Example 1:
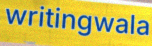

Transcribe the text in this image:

writingwala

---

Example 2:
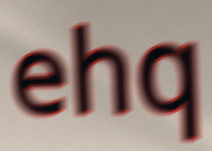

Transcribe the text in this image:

ehq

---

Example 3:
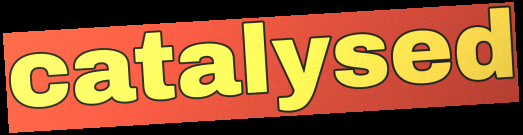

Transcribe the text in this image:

catalysed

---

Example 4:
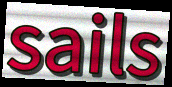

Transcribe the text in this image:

sails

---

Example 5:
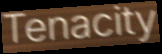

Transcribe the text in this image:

Tenacity